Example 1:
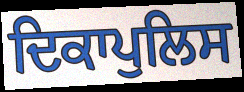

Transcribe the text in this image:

ਦਿਕਾਪੁਲਿਸ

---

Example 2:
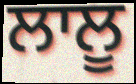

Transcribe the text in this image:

ਲਾਲੂ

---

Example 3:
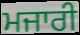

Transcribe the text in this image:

ਮਜਾਰੀ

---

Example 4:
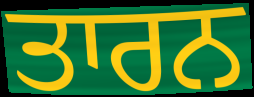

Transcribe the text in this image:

ਤਾਰਨ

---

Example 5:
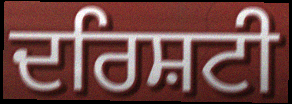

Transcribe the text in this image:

ਦਰਿਸ਼ਟੀ